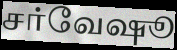
சர்வேஷூ